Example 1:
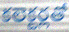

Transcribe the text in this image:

కలెక్టర్లతో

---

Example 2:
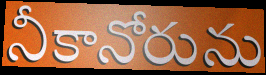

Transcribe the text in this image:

నీకానోరును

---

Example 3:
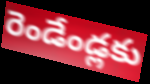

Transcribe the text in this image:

రెండేండ్లకు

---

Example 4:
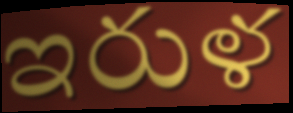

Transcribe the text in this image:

ఇరుళ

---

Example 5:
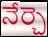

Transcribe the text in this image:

నేర్చె